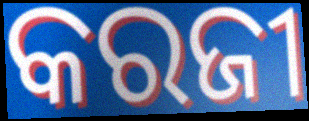
କରଜୀ